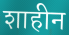
शाहीन